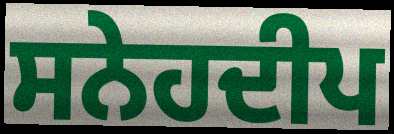
ਸਨੇਹਦੀਪ